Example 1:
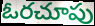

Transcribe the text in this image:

ఓరచూపు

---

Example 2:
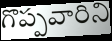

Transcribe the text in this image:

గొప్పవారిని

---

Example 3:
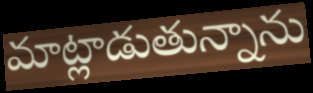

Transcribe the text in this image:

మాట్లాడుతున్నాను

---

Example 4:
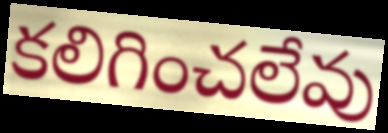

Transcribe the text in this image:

కలిగించలేవు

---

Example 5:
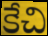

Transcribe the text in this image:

కేచి